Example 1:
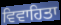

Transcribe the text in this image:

ਵਿਵਾਹਿਤਾ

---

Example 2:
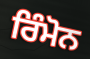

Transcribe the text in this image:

ਰਿੰਮੋਨ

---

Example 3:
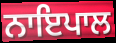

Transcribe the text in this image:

ਨਾਇਪਾਲ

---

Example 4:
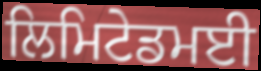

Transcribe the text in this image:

ਲਿਮਿਟੇਡਮਈ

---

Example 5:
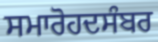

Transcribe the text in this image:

ਸਮਾਰੋਹਦਸੰਬਰ